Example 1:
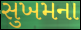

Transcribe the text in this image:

સુખમના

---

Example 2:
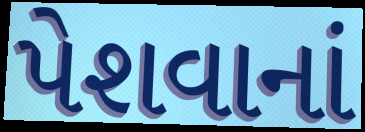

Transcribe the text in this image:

પેશવાનાં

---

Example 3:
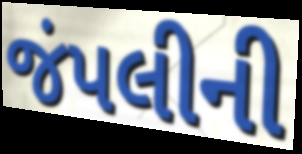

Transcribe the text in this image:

જંપલીની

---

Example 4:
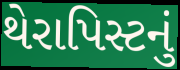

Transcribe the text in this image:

થેરાપિસ્ટનું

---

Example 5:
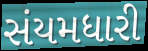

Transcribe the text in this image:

સંયમધારી